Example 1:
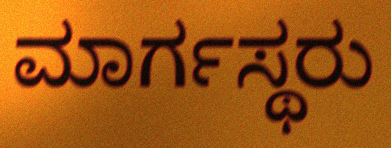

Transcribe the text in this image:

ಮಾರ್ಗಸ್ಥರು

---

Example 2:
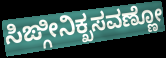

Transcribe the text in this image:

ಸಿಙ್ಗೀನಿಕ್ಖಸವಣ್ಣೋ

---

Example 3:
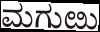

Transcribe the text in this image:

ಮಗುೞು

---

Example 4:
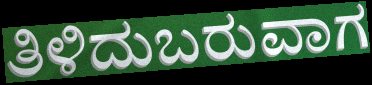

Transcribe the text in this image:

ತಿಳಿದುಬರುವಾಗ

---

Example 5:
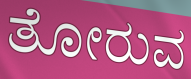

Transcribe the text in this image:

ತೋರುವ